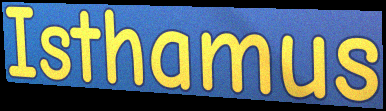
Isthamus